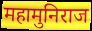
महामुनिराज